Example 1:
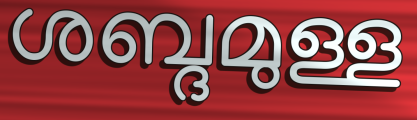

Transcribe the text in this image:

ശബ്ദമുള്ള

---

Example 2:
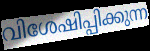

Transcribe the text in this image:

വിശേഷിപ്പിക്കുന്ന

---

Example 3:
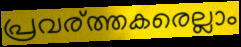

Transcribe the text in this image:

പ്രവര്ത്തകരെല്ലാം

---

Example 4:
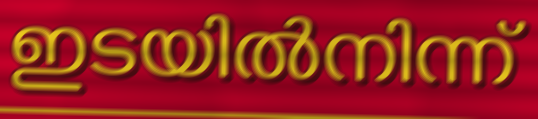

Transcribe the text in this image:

ഇടയിൽനിന്ന്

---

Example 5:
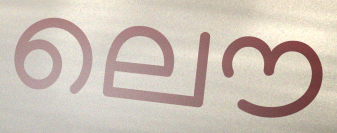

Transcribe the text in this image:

ലൌ